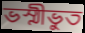
ভস্মীভুত